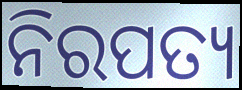
ନିରପତ୍ୟ